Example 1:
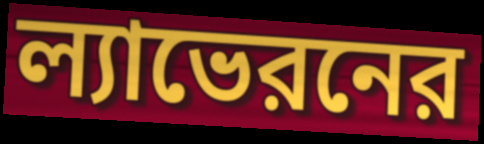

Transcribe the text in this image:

ল্যাভেরনের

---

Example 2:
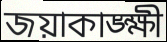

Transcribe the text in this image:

জয়াকাঙ্ক্ষী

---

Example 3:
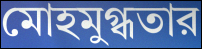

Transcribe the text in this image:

মোহমুগ্ধতার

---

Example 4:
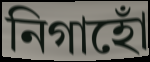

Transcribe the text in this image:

নিগাহোঁ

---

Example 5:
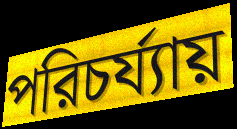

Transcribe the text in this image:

পরিচর্য্যায়